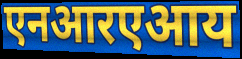
एनआरएआय